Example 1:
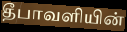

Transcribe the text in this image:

தீபாவளியின்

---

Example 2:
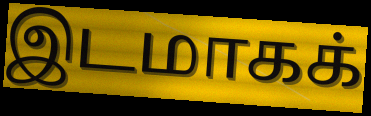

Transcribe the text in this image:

இடமாகக்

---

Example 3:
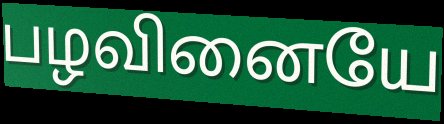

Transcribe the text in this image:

பழவினையே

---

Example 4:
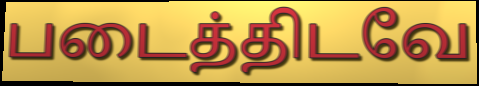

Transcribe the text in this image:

படைத்திடவே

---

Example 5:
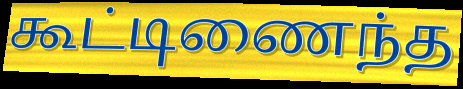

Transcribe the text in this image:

கூட்டிணைந்த